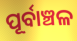
ପୂର୍ବାଞ୍ଚଳ